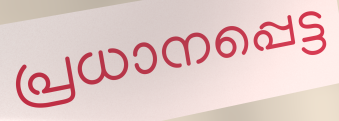
പ്രധാനപ്പെട്ട